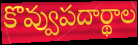
కొవ్వుపదార్థాల